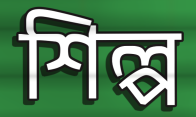
শিল্প